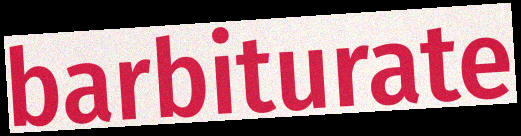
barbiturate